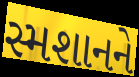
સ્મશાનને